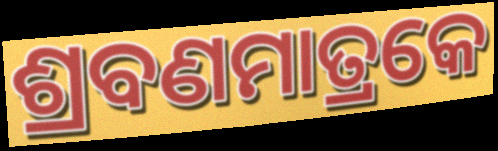
ଶ୍ରବଣମାତ୍ରକେ